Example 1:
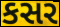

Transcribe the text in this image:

કસર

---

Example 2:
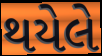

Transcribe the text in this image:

થયેલે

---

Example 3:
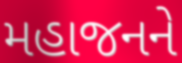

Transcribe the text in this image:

મહાજનને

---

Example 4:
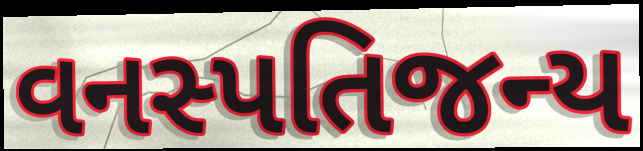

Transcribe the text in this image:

વનસ્પતિજન્ય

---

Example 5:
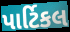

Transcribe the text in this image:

પાર્ટિકલ